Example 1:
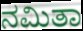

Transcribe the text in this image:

ನಮಿತಾ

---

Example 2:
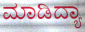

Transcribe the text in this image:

ಮಾಡಿದ್ಯಾ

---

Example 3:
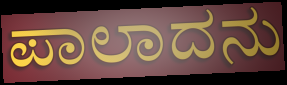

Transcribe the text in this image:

ಪಾಲಾದನು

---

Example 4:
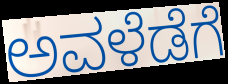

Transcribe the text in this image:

ಅವಳೆಡೆಗೆ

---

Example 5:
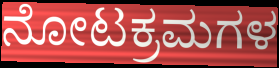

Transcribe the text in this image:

ನೋಟಕ್ರಮಗಳ